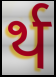
र्थ